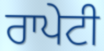
ਰਾਪੇਟੀ